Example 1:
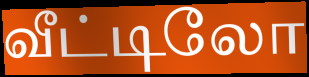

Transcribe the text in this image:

வீட்டிலோ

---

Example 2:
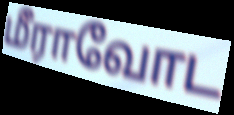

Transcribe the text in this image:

மீராவோட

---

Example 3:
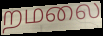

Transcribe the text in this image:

றமலை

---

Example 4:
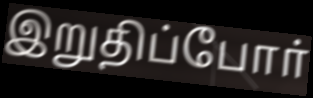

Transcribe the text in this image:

இறுதிப்போர்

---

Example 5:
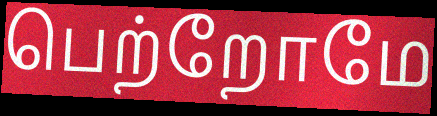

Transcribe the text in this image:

பெற்றோமே